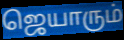
ஜெயாரும்